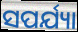
ସପର୍ଯ୍ୟା